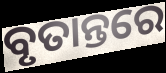
ବୃତାନ୍ତରେ